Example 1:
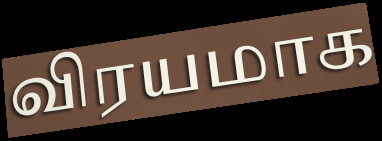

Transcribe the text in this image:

விரயமாக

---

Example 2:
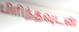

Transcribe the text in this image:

பிரிந்தவுடன்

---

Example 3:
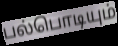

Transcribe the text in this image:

பல்பொடியும்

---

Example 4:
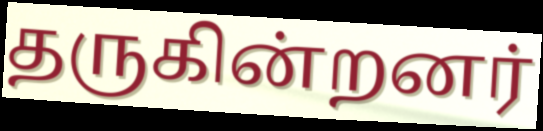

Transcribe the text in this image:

தருகின்றனர்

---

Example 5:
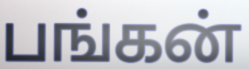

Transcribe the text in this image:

பங்கன்